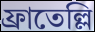
ফ্রাতেল্লি